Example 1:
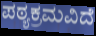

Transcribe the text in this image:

ಪಠ್ಯಕ್ರಮವಿದೆ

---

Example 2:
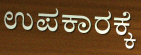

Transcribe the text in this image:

ಉಪಕಾರಕ್ಕೆ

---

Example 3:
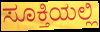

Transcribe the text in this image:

ಸೂಕ್ತಿಯಲ್ಲಿ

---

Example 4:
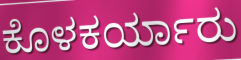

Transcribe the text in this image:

ಕೊಳಕರ್ಯಾರು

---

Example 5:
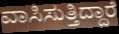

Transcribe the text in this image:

ವಾಸಿಸುತ್ತಿದ್ದಾರೆ